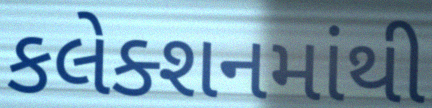
કલેક્શનમાંથી